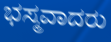
ಭಸ್ಮವಾದರು